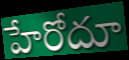
హేరోదూ